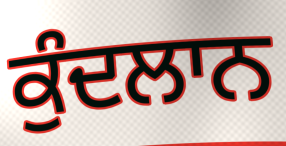
ਕੁੰਦਲਾਨ